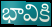
భావికి